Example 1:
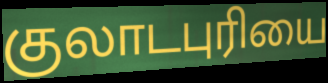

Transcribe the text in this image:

குலாடபுரியை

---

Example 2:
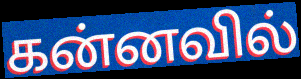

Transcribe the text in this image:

கன்னவில்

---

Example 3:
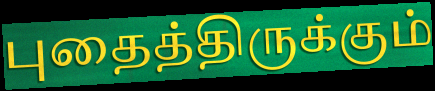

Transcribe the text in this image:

புதைத்திருக்கும்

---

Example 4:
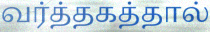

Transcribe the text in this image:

வர்த்தகத்தால்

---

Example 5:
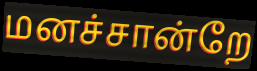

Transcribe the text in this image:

மனச்சான்றே